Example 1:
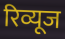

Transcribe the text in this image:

रिव्‍यूज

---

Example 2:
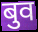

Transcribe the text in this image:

बुव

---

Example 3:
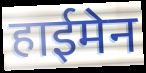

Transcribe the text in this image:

हाईमेन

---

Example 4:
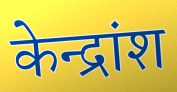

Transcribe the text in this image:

केन्द्रांश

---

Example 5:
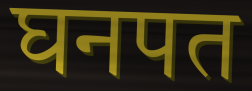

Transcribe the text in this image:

घनपत